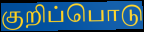
குறிப்பொடு